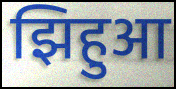
झिहुआ